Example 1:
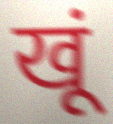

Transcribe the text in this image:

खूं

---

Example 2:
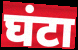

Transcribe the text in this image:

घंटा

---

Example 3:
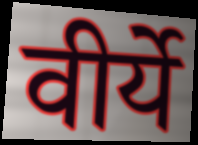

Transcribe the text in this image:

वीर्ये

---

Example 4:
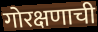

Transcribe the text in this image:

गोरक्षणाची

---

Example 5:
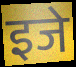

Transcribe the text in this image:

इजे